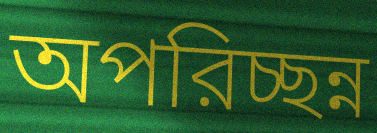
অপরিচ্ছন্ন